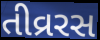
તીવ્રરસ